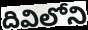
దివిలోని